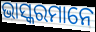
ଭାସ୍କରମାନେ